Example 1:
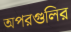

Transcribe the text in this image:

অপরগুলির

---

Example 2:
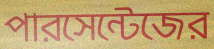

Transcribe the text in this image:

পারসেন্টেজের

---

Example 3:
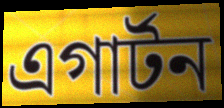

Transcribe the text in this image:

এগার্টন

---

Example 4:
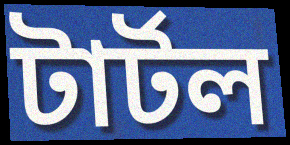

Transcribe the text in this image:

টার্টল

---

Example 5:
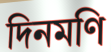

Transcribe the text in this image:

দিনমণি